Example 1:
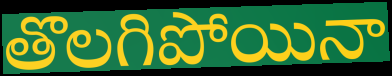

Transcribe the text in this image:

తొలగిపోయినా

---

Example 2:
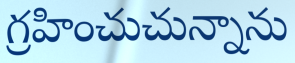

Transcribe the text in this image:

గ్రహించుచున్నాను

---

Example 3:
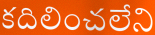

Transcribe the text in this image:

కదిలించలేని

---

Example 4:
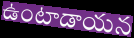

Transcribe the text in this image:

ఉంటాడాయన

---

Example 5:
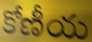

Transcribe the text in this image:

కోణీయ